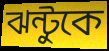
ঝন্টুকে